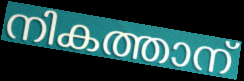
നികത്താന്